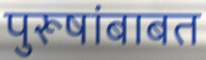
पुरूषांबाबत